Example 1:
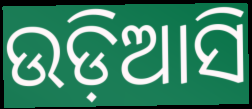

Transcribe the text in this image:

ଉଡ଼ିଆସି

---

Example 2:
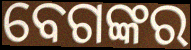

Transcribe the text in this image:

ବେଗଙ୍କର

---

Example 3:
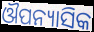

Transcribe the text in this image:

ଔପନ୍ୟାସିକ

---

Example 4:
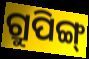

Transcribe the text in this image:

ଗ୍ରୁପିଙ୍ଗ୍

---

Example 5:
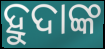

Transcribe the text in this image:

ହୁଦାଙ୍କ